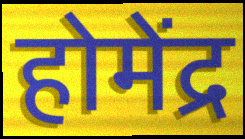
होमेंद्र